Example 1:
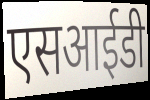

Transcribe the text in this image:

एसआईडी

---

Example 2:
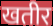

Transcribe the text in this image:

खतीर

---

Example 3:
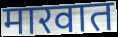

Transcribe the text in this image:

मारवात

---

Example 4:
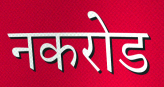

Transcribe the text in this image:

नकरोड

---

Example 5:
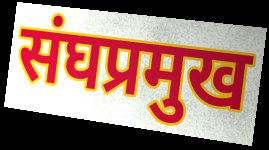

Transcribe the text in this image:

संघप्रमुख